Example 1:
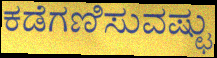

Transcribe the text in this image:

ಕಡೆಗಣಿಸುವಷ್ಟು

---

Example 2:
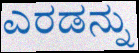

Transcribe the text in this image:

ಎರಡನ್ನು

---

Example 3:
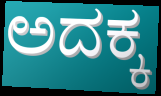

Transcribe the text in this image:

ಅದಕ್ಕ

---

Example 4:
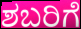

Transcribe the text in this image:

ಶಬರಿಗೆ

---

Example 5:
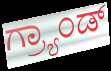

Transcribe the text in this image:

ಗ್ರ್ಯಾಂಡ್